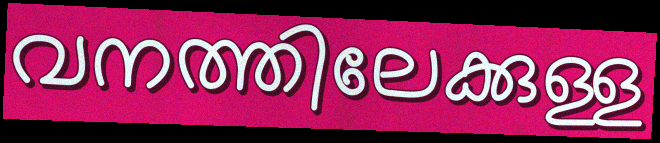
വനത്തിലേക്കുള്ള